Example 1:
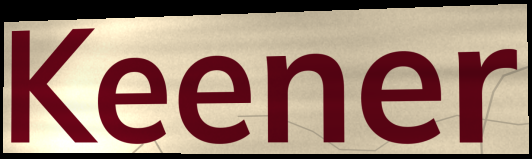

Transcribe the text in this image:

Keener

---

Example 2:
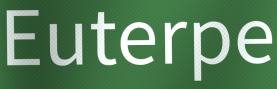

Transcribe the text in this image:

Euterpe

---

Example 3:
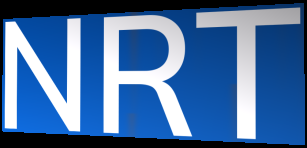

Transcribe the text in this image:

NRT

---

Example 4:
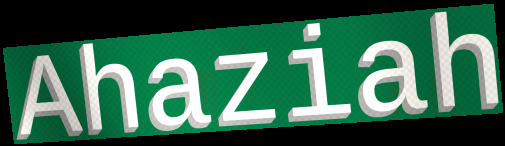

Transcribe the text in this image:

Ahaziah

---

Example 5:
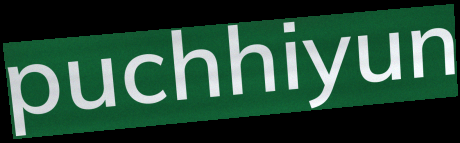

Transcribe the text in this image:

puchhiyun